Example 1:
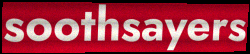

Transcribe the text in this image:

soothsayers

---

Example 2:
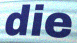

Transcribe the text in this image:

die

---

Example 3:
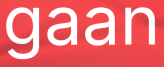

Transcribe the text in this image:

gaan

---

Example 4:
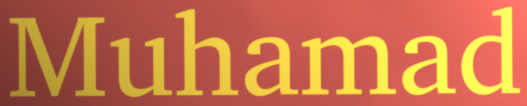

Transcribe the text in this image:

Muhamad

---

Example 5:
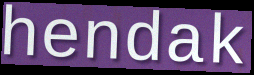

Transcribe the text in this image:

hendak